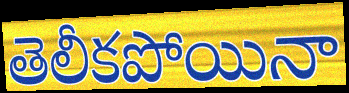
తెలీకపోయినా